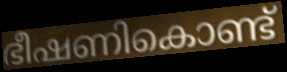
ഭീഷണികൊണ്ട്